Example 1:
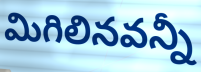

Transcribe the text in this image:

మిగిలినవన్నీ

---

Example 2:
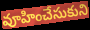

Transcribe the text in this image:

వూహించేసుకుని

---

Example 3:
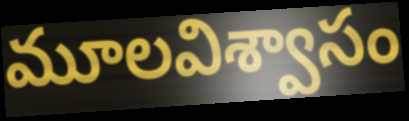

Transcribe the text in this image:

మూలవిశ్వాసం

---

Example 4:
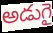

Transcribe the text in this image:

అడుగై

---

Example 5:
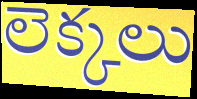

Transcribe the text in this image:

లెక్కలు